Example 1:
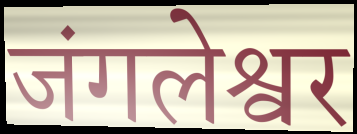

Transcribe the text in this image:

जंगलेश्वर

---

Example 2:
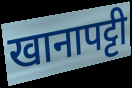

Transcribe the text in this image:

खानापट्टी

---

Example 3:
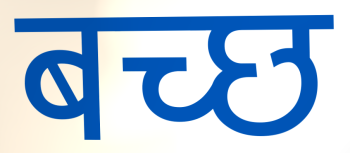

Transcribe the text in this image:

बच्छ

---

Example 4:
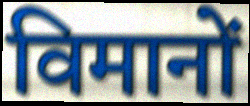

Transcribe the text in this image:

विमानों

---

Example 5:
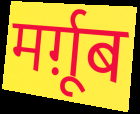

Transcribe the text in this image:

मर्ग़ूब